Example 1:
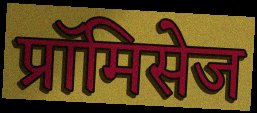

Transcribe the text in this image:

प्रॉमिसेज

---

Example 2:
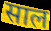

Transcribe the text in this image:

साल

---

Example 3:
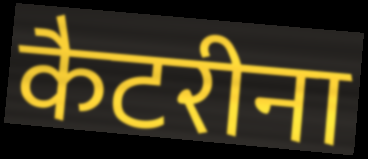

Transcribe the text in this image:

कैटरीना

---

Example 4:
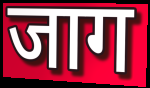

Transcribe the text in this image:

जाग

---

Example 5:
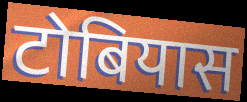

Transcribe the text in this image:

टोबियास